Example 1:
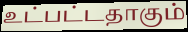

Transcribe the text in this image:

உட்பட்டதாகும்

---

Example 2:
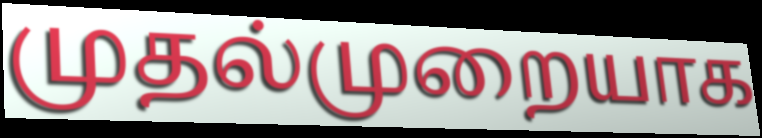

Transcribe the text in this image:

முதல்முறையாக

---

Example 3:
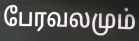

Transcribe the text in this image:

பேரவலமும்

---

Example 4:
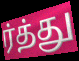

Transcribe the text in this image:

ர்த்து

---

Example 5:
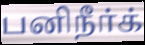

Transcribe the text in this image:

பனிநீர்க்